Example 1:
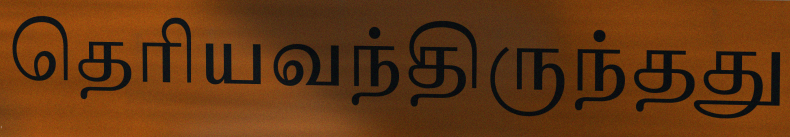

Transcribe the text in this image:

தெரியவந்திருந்தது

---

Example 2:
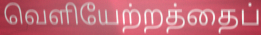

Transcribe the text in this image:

வெளியேற்றத்தைப்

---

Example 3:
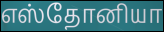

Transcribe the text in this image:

எஸ்தோனியா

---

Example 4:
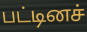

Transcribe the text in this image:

பட்டினச்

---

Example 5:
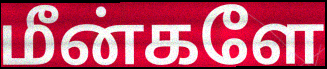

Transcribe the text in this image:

மீன்களே